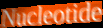
Nucleotide